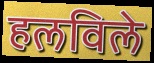
हलविले